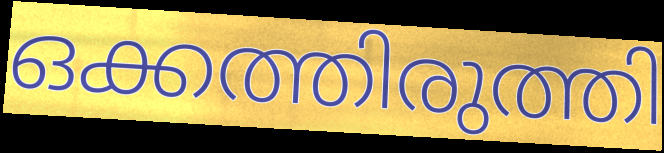
ഒക്കത്തിരുത്തി